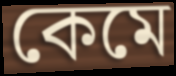
কেমে